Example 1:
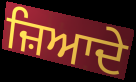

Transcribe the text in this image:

ਜ਼ਿਆਦੇ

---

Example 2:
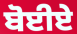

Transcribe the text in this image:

ਬੋਈਏ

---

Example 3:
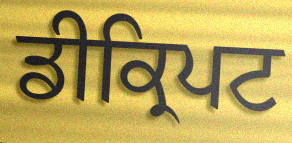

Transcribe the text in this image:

ਡੀਕ੍ਰਿਪਟ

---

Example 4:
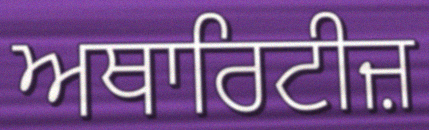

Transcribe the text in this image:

ਅਥਾਰਿਟੀਜ਼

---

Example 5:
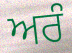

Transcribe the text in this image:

ਅਰੰ